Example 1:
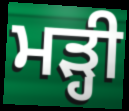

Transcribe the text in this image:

ਮੜ੍ਹੀ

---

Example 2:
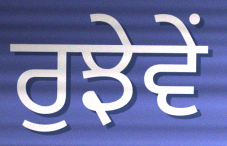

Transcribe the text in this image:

ਰੁਝੇਵੇਂ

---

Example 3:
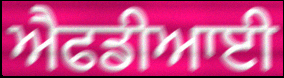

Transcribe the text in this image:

ਐਫਡੀਆਈ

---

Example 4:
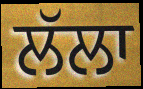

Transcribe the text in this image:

ਲੱਲਾ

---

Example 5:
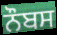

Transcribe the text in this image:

ਨੌਬਸ